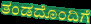
ತಂಡದೊಂದಿಗೆ